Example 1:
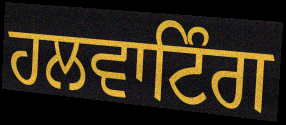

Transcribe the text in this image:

ਹਲਵਾਟਿੰਗ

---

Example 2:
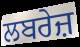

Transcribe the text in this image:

ਲਬਰੇਜ਼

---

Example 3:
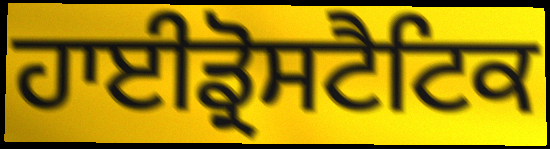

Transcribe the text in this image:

ਹਾਈਡ੍ਰੋਸਟੈਟਿਕ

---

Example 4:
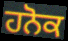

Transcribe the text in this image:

ਹਨੋਕ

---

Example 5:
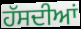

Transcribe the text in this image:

ਹੱਸਦੀਆਂ